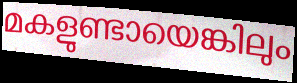
മകളുണ്ടായെങ്കിലും